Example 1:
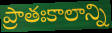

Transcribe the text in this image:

ప్రాతఃకాలాన్ని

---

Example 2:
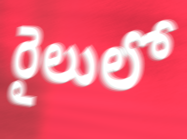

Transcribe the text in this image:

రైలులో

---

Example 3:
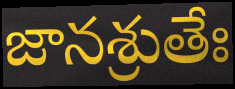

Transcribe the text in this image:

జానశ్రుతేః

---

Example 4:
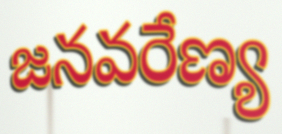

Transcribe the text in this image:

జనవరేణ్య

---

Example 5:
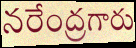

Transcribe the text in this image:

నరేంద్రగారు